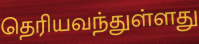
தெரியவந்துள்ளது